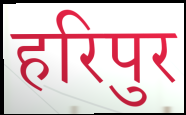
हरिपुर